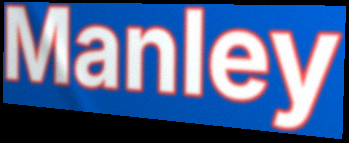
Manley